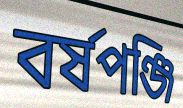
বর্ষপঞ্জি